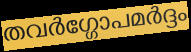
തവർഗ്ഗോപമർദ്ദം